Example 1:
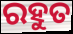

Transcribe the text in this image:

ରହୁତ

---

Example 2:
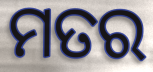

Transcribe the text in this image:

ମତର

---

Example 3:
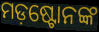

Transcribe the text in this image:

ମଡ଼ଷ୍ଟୋନଙ୍କ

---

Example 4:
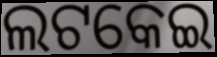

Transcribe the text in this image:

ଲଟକେଇ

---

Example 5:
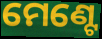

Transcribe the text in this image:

ମେଣ୍ଟେ